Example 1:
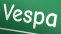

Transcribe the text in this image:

Vespa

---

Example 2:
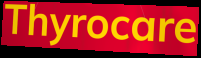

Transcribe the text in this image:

Thyrocare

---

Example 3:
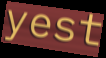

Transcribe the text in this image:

yest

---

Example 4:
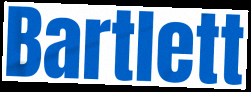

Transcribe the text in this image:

Bartlett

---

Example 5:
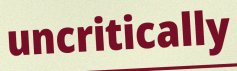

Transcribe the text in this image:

uncritically